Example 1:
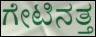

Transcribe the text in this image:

ಗೇಟಿನತ್ತ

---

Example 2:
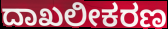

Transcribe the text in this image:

ದಾಖಲೀಕರಣ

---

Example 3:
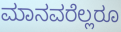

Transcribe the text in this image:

ಮಾನವರೆಲ್ಲರೂ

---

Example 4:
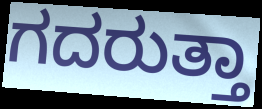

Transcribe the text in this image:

ಗದರುತ್ತಾ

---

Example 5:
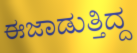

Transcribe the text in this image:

ಈಜಾಡುತ್ತಿದ್ದ